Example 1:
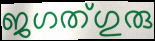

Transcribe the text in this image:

ജഗത്ഗുരു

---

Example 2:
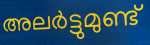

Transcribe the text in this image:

അലർട്ടുമുണ്ട്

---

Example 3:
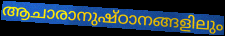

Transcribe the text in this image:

ആചാരാനുഷ്ഠാനങ്ങളിലും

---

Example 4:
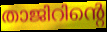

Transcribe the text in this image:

താജിറിന്റെ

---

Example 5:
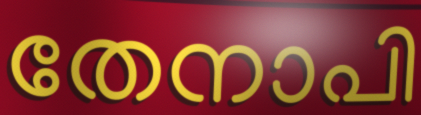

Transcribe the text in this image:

തേനാപി